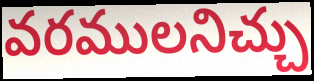
వరములనిచ్చు